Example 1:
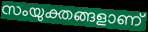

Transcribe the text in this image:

സംയുക്തങ്ങളാണ്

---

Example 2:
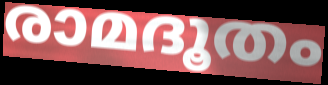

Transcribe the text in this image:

രാമദൂതം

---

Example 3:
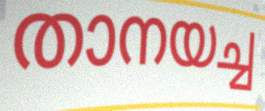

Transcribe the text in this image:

താനയച്ച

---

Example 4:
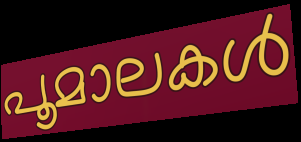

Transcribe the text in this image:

പൂമാലകൾ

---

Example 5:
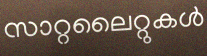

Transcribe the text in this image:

സാറ്റലൈറ്റുകൾ